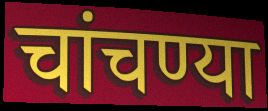
चांचण्या